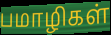
பமாழிகள்